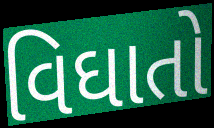
વિઘાતો